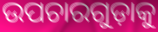
ଉପଚାରଗୁଡ଼ାକୁ